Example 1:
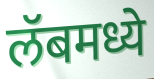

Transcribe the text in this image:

लॅबमध्ये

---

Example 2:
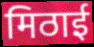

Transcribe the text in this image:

मिठाई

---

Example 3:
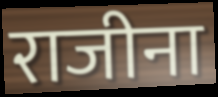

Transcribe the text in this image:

राजीना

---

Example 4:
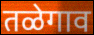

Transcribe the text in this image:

तळेगाव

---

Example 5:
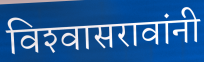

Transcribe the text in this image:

विश्वासरावांनी